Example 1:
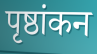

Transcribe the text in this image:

पृष्ठांकन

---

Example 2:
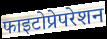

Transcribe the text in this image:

फाइटोप्रेपरेशन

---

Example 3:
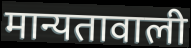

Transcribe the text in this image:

मान्यतावाली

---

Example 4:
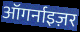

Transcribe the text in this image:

ऑगर्नाइज़र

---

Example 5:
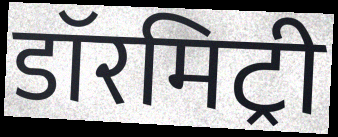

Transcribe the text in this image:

डॉरमिट्री